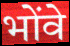
भोंवे